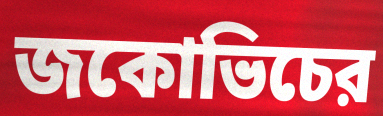
জকোভিচের